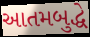
આતમબુદ્ધે